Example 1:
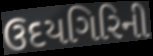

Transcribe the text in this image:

ઉદયગિરિની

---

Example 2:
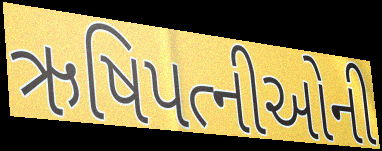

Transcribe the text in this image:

ઋષિપત્નીઓની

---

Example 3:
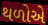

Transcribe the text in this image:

થળોએ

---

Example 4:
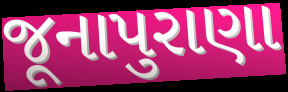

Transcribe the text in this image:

જૂનાપુરાણા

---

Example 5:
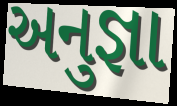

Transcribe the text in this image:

અનુજ્ઞા